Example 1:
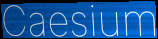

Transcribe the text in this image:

Caesium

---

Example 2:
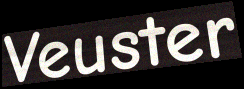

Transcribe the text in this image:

Veuster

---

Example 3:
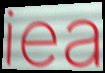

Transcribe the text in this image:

iea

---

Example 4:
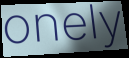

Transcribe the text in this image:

onely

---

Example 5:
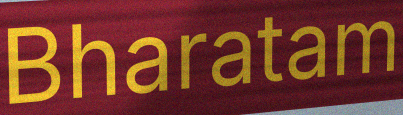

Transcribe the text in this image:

Bharatam